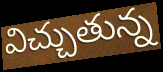
విచ్చుతున్న